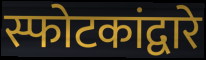
स्फोटकांद्वारे